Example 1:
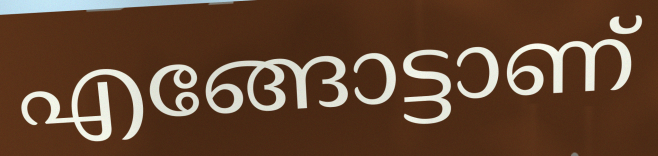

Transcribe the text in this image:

എങ്ങോട്ടാണ്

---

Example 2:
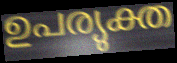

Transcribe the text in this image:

ഉപര്യുക്ത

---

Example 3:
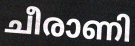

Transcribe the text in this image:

ചീരാണി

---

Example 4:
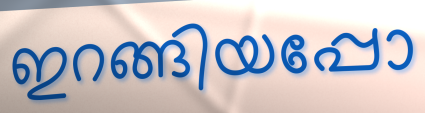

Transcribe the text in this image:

ഇറങ്ങിയപ്പോ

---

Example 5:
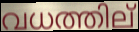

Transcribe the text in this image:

വധത്തില്